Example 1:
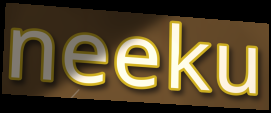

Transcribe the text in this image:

neeku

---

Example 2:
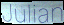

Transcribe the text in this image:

Julian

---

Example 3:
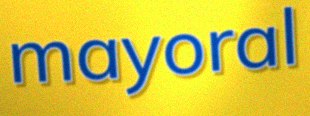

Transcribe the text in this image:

mayoral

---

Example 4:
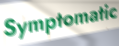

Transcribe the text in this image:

Symptomatic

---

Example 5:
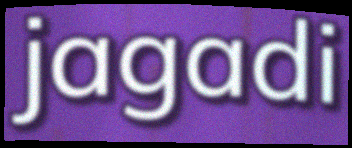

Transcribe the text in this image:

jagadi